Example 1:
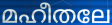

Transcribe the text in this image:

മഹീതലേ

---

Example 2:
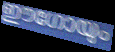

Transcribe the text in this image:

ഈഗോയും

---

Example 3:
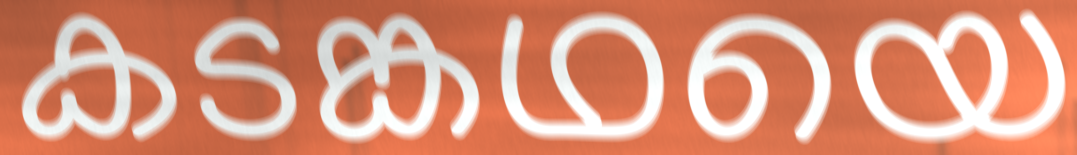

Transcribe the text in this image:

കടങ്കഥയെ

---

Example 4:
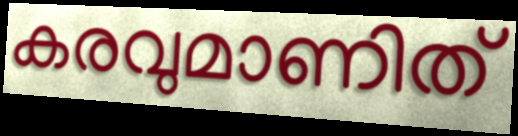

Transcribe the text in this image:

കരവുമാണിത്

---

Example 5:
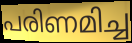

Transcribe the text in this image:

പരിണമിച്ച